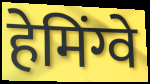
हेमिंग्वे